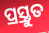
ପ୍ର୍ରସ୍ତୁତ